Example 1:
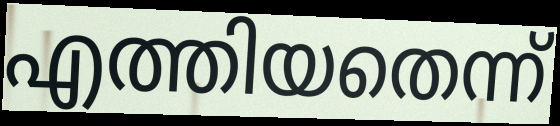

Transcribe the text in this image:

എത്തിയതെന്ന്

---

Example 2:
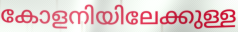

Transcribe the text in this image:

കോളനിയിലേക്കുള്ള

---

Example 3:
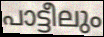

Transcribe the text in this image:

പാട്ടീലും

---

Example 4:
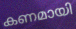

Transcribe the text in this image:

കണമായി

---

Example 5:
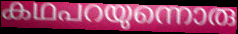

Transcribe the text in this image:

കഥപറയുന്നൊരു